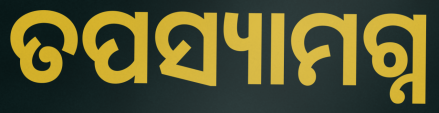
ତପସ୍ୟାମଗ୍ନ